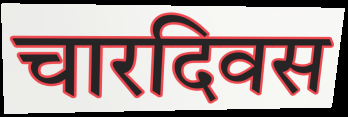
चारदिवस